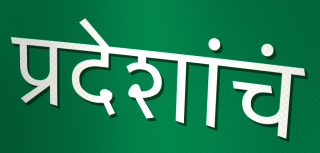
प्रदेशांचं